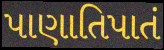
પાણાતિપાતં